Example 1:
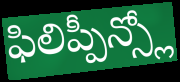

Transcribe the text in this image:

ఫిలిప్పీన్స్లో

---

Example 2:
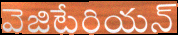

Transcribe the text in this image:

వెజిటేరియన్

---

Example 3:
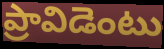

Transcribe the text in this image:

ప్రావిడెంటు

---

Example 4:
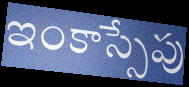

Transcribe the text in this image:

ఇంకాస్సేపు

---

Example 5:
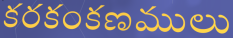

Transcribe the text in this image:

కరకంకణములు